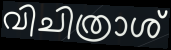
വിചിത്രാശ്